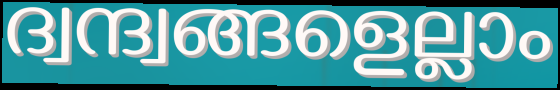
ദ്വന്ദ്വങ്ങളെല്ലാം